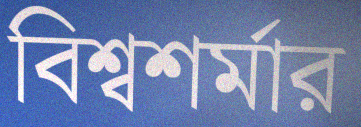
বিশ্বশর্মার